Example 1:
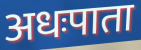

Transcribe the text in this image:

अधःपाता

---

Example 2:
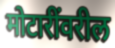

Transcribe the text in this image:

मोटारींवरील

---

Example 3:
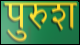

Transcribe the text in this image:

पुरुश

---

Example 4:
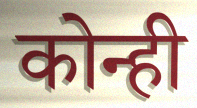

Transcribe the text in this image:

कोन्ही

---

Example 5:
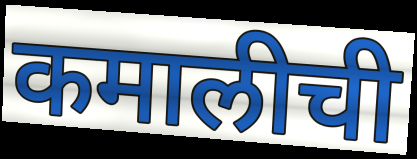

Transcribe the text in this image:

कमालीची